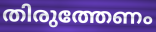
തിരുത്തേണം